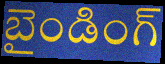
బైండింగ్